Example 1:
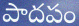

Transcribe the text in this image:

పాదపం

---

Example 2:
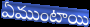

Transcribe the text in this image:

ఏముంటాయి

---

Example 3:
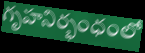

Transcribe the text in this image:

గృహనిర్భంధంలో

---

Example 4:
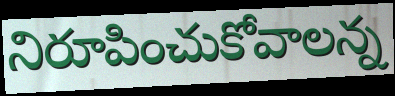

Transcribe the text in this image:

నిరూపించుకోవాలన్న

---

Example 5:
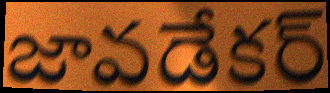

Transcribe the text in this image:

జావడేకర్